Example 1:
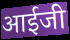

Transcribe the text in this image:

आईजी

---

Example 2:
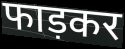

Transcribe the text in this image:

फाड़कर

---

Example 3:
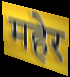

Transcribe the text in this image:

महेर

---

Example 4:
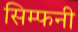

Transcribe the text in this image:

सिम्फनी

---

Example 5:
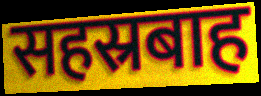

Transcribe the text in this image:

सहस्रबाह